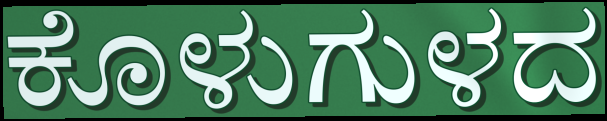
ಕೊಳುಗುಳದ